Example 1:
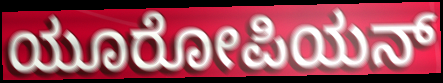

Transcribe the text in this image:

ಯೂರೋಪಿಯನ್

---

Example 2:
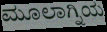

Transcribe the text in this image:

ಮೂಲಾಗ್ನಿಯ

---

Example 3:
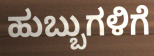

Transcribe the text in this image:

ಹುಬ್ಬುಗಳಿಗೆ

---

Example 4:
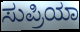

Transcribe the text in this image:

ಸುಪ್ರಿಯಾ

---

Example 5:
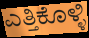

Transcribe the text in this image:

ಎತ್ತಿಕೊಳ್ಳಿ